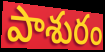
పాశురం